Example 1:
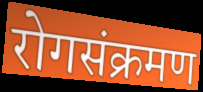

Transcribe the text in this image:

रोगसंक्रमण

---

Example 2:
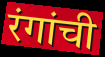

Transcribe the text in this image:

रंगांची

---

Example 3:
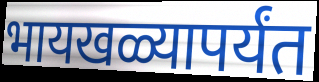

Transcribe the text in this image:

भायखळ्यापर्यंत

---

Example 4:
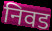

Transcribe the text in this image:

निवड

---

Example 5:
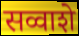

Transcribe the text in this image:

सव्वाशे